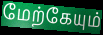
மேற்கேயும்